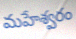
మహేశ్వరం